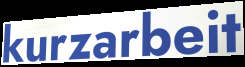
kurzarbeit